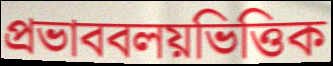
প্রভাববলয়ভিত্তিক